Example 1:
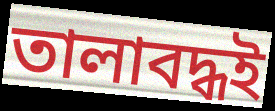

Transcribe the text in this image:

তালাবদ্ধই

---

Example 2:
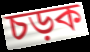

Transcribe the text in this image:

চড়ক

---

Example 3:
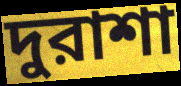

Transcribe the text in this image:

দুরাশা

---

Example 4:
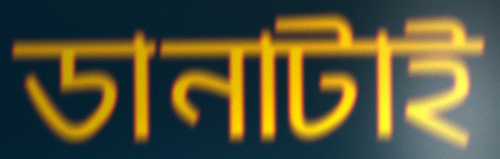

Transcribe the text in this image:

ডানাটাই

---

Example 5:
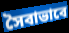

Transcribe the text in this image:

সৈবাভাবে